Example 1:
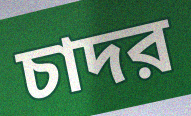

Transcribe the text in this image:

চাদর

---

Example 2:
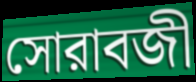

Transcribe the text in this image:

সোরাবজী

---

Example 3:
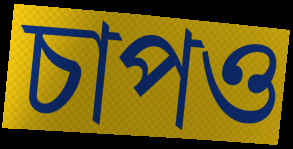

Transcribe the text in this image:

চাপও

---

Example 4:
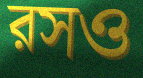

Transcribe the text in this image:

রসও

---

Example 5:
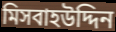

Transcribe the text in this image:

মিসবাহউদ্দিন